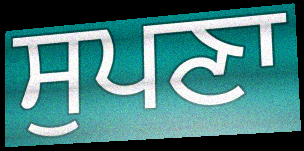
ਸੁਪਣਾ